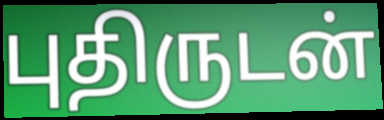
புதிருடன்